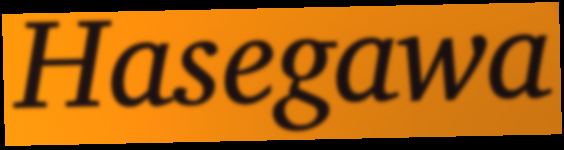
Hasegawa